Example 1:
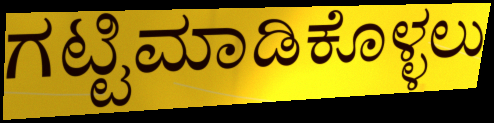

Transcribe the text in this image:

ಗಟ್ಟಿಮಾಡಿಕೊಳ್ಳಲು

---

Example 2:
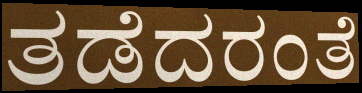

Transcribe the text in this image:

ತಡೆದರಂತೆ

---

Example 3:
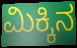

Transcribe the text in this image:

ಮಿಕ್ಕಿನ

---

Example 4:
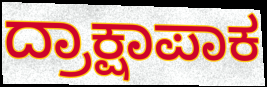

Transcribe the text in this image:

ದ್ರಾಕ್ಷಾಪಾಕ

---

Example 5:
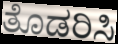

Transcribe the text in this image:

ತೊಡರಿಸಿ